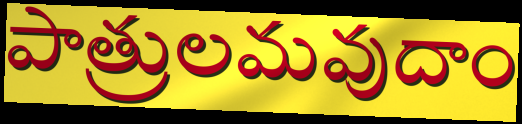
పాత్రులమవుదాం